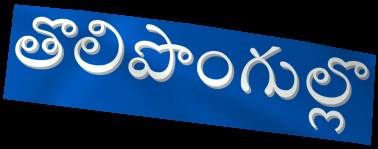
తొలిపొంగుల్లొ